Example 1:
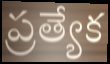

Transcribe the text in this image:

ప్రత్యేక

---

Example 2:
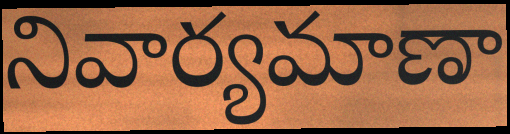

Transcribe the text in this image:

నివార్యమాణా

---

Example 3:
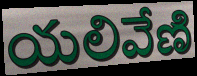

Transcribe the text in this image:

యలివేణి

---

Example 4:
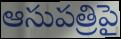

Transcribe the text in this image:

ఆసుపత్రిపై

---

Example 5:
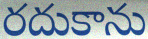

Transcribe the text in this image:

రదుకాను